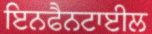
ਇਨਫੈਨਟਾਈਲ